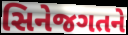
સિનેજગતને